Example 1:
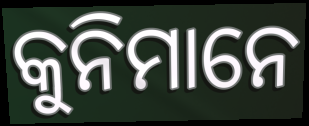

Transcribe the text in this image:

କୁନିମାନେ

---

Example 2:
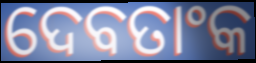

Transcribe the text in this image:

ଦେବତାଂକ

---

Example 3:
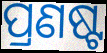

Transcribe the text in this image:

ପ୍ରଣଷ୍ଟ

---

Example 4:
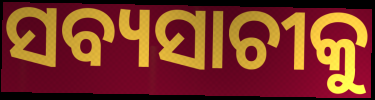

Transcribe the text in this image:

ସବ୍ୟସାଚୀକୁ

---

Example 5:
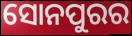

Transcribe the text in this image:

ସୋନପୁରର